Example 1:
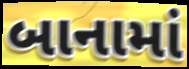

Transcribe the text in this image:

બાનામાં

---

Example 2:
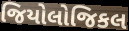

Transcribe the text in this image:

જિયોલોજિકલ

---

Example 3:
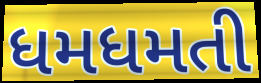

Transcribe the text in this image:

ધમધમતી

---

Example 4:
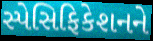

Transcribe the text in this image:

સ્પેસિફિકેશનને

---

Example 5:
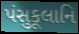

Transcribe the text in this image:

પંસુકૂલાનિ